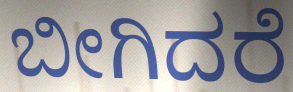
ಬೀಗಿದರೆ